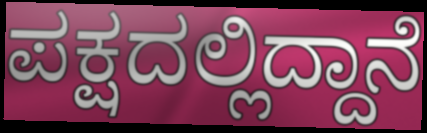
ಪಕ್ಷದಲ್ಲಿದ್ದಾನೆ